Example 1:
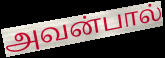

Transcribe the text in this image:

அவன்பால்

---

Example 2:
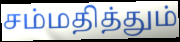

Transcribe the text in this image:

சம்மதித்தும்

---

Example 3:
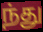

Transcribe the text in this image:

ந்து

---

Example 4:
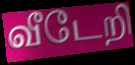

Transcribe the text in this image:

வீடேறி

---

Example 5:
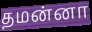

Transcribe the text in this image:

தமன்னா